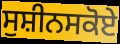
ਸੁਸ਼ੀਨਸਕੋਏ